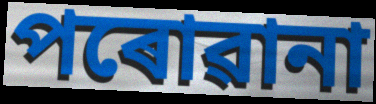
পৰোৱানা